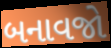
બનાવજો